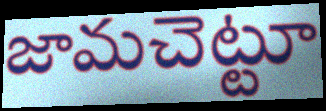
జామచెట్టూ